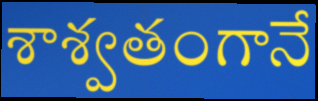
శాశ్వతంగానే